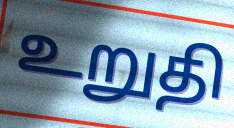
உறுதி